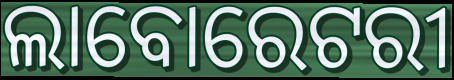
ଲାବୋରେଟରୀ